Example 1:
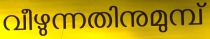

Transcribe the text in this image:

വീഴുന്നതിനുമുമ്പ്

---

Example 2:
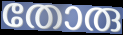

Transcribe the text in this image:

തോരു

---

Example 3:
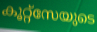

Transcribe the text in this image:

കൂറ്റ്സേയുടെ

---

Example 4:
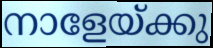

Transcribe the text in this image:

നാളേയ്ക്കു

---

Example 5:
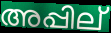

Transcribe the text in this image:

അപ്പില്